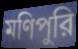
মণিপুরি